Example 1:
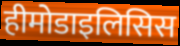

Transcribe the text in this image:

हीमोडाइलिसिस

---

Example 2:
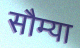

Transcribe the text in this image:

सौम्या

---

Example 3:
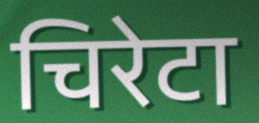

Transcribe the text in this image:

चिरेटा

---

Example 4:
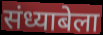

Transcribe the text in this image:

संध्याबेला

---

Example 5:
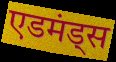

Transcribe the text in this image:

एडमंड्स